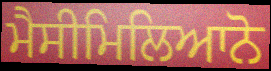
ਮੈਸੀਮਿਲਿਆਨੋ